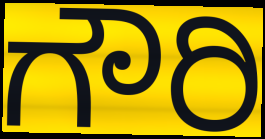
ಗೌರಿ